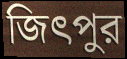
জিৎপুর